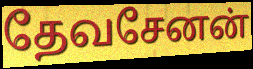
தேவசேனன்